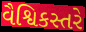
વૈશ્વિકસ્તરે